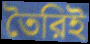
তৈরিই